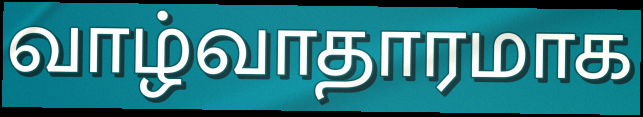
வாழ்வாதாரமாக